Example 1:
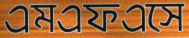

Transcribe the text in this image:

এমএফএসে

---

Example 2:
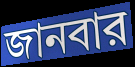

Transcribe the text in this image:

জানবার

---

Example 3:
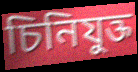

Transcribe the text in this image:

চিনিযুক্ত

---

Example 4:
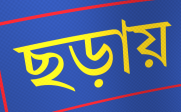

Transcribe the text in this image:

ছড়ায়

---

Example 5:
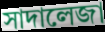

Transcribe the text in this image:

সাদালেজা